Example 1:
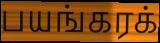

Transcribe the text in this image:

பயங்கரக்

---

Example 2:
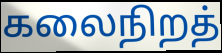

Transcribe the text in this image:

கலைநிறத்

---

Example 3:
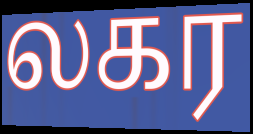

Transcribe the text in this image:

லகர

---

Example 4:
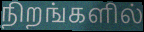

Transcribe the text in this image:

நிறங்களில்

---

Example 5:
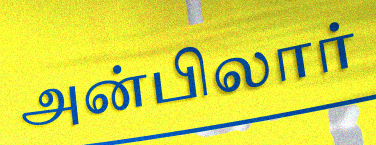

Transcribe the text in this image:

அன்பிலார்